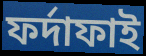
ফর্দাফাই